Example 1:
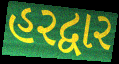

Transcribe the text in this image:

હરદ્વાર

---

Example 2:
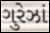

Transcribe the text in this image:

ગુરેઝાં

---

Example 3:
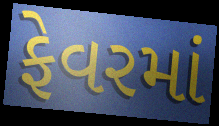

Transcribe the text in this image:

ફેવરમાં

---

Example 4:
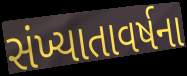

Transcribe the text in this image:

સંખ્યાતાવર્ષના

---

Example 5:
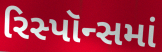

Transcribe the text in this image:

રિસ્પૉન્સમાં